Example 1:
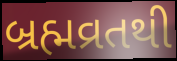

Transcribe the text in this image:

બ્રહ્મવ્રતથી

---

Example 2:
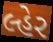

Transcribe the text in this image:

લ્હેર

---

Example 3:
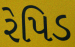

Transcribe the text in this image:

રેપિડ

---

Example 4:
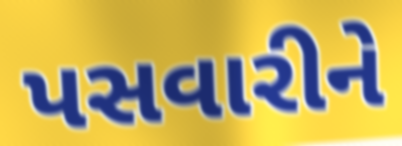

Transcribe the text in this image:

પસવારીને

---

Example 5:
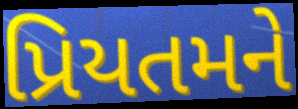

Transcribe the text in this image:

પ્રિયતમને